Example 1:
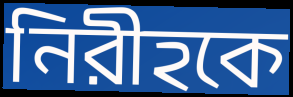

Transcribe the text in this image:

নিরীহকে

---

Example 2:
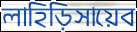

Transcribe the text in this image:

লাহিড়িসায়েব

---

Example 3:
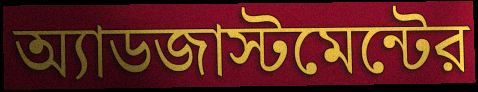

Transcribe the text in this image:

অ্যাডজাস্টমেন্টের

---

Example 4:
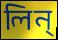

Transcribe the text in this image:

লিন্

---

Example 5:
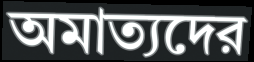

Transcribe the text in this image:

অমাত্যদের